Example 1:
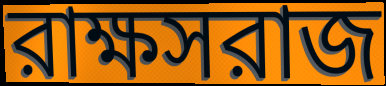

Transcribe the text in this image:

রাক্ষসরাজ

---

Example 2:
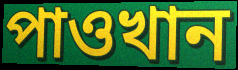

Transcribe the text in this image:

পাওখান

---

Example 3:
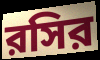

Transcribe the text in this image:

রসির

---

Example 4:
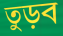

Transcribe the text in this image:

তুড়ব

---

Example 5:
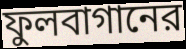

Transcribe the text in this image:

ফুলবাগানের